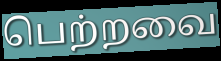
பெற்றவை